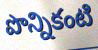
పొన్నికంటి